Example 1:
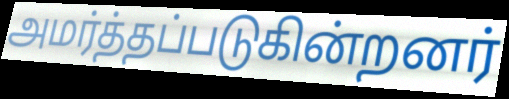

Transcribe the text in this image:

அமர்த்தப்படுகின்றனர்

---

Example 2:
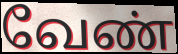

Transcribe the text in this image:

வேண்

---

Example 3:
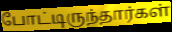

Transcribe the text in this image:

போட்டிருந்தார்கள்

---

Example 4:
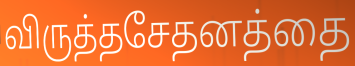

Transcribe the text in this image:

விருத்தசேதனத்தை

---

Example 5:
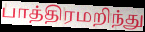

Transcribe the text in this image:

பாத்திரமறிந்து